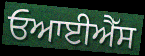
ਓਆਈਐੱਸ